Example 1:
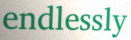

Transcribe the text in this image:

endlessly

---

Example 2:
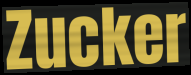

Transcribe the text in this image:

Zucker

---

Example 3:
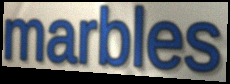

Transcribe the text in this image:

marbles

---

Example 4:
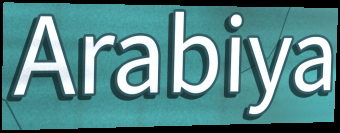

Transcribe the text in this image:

Arabiya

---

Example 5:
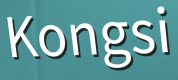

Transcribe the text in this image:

Kongsi